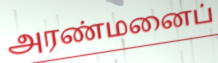
அரண்மனைப்